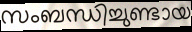
സംബന്ധിച്ചുണ്ടായ